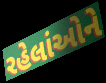
રહેલાંઓને